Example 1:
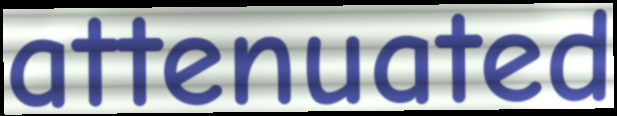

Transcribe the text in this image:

attenuated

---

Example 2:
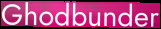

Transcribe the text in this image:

Ghodbunder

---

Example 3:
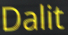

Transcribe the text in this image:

Dalit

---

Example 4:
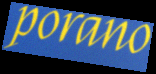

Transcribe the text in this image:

porano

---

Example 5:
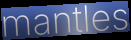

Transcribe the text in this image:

mantles